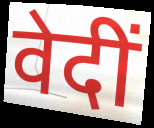
वेदीं